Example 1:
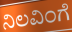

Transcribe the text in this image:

ನಿಲವಿಂಗೆ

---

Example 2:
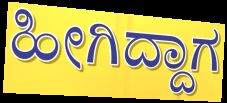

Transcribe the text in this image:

ಹೀಗಿದ್ದಾಗ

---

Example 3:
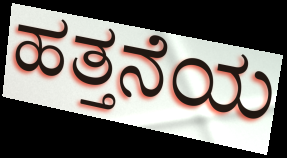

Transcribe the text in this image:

ಹತ್ತನೆಯ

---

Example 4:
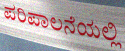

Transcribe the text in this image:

ಪರಿಪಾಲನೆಯಲ್ಲಿ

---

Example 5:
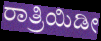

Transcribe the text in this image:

ರಾತ್ರಿಯಿಡೀ